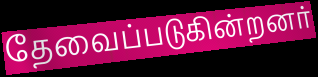
தேவைப்படுகின்றனர்